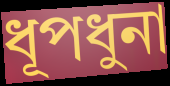
ধূপধুনা